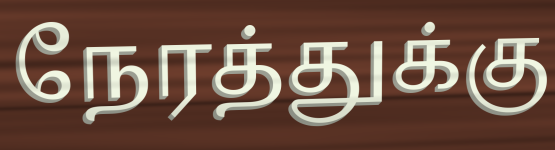
நேரத்துக்கு